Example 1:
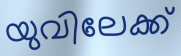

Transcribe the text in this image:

യുവിലേക്ക്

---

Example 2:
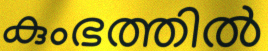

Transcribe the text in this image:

കുംഭത്തിൽ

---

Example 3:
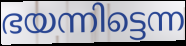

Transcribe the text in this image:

ഭയന്നിട്ടെന്ന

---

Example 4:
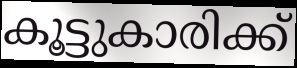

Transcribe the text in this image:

കൂട്ടുകാരിക്ക്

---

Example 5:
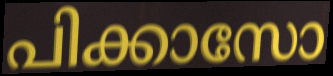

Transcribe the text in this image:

പിക്കാസോ